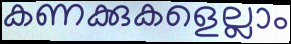
കണക്കുകളെല്ലാം